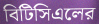
বিটিসিএলের